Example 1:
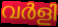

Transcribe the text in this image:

വർളി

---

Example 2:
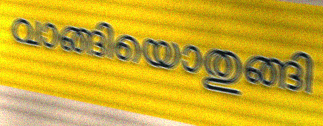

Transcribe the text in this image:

വാങ്ങിയൊതുങ്ങി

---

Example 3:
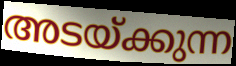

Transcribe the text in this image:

അടയ്ക്കുന്ന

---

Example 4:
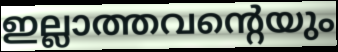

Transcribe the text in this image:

ഇല്ലാത്തവന്റെയും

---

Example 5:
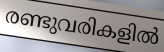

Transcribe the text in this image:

രണ്ടുവരികളിൽ